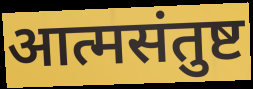
आत्मसंतुष्ट